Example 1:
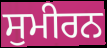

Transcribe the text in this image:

ਸੁਮੀਰਨ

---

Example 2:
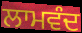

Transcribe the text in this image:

ਲਾਮਵੰਦ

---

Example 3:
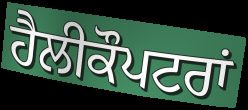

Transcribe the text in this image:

ਹੈਲੀਕੌਪਟਰਾਂ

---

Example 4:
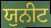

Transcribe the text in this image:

ਯੁਨੀਟ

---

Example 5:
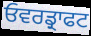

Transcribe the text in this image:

ਓਵਰਡ੍ਰਾਫਟ